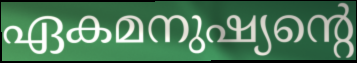
ഏകമനുഷ്യന്റെ